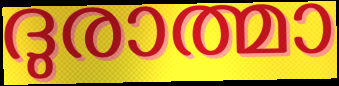
ദുരാത്മാ